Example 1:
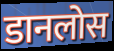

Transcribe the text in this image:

डानलोस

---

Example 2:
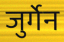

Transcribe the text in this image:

जुर्गेन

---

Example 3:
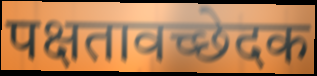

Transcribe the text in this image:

पक्षतावच्छेदक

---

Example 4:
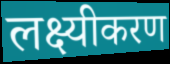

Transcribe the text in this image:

लक्ष्यीकरण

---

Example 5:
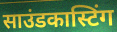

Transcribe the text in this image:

साउंडकास्टिंग